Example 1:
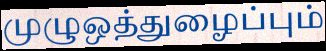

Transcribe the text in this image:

முழுஒத்துழைப்பும்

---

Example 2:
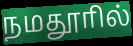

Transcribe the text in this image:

நமதூரில்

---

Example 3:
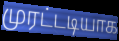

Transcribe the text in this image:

முரட்டடியாக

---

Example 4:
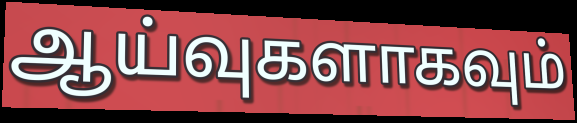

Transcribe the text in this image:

ஆய்வுகளாகவும்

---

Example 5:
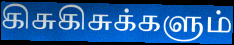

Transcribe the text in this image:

கிசுகிசுக்களும்